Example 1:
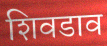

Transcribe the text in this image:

शिवडाव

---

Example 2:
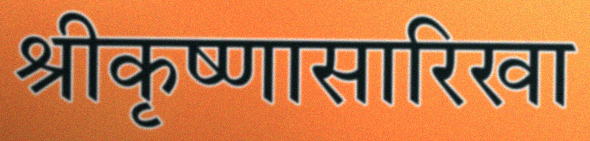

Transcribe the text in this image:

श्रीकृष्णासारिखा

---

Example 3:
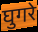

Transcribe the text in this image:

घुगरे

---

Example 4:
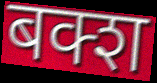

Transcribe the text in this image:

बक्श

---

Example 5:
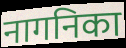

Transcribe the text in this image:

नागनिका